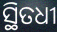
ସ୍ଥିତଧୀ